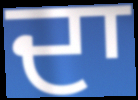
ਦਾ